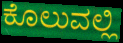
ಕೊಲುವಲ್ಲಿ